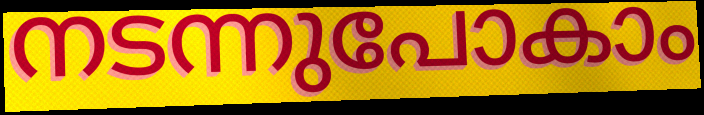
നടന്നുപോകാം